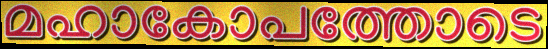
മഹാകോപത്തോടെ